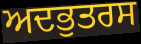
ਅਦਭੁਤਰਸ